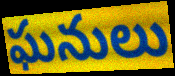
ఘనులు